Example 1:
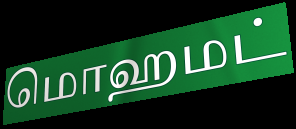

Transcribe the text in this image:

மொஹமட்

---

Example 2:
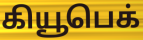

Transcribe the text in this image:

கியூபெக்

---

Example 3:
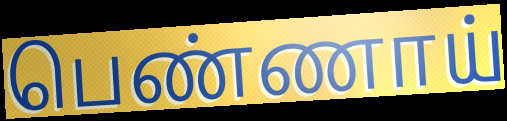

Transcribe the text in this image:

பெண்ணாய்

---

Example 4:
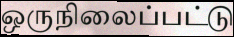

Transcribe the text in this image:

ஒருநிலைப்பட்டு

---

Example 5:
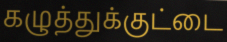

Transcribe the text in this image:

கழுத்துக்குட்டை